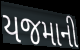
યજમાની